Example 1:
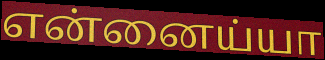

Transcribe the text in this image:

என்னைய்யா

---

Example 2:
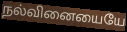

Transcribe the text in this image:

நல்வினையையே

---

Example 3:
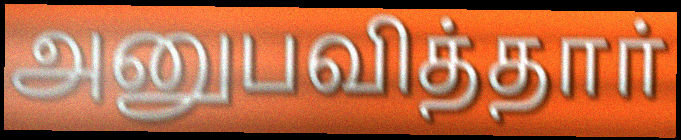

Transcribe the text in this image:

அனுபவித்தார்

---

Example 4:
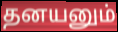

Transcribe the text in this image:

தனயனும்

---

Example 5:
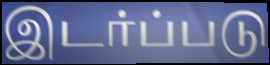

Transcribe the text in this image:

இடர்ப்படு